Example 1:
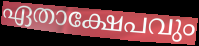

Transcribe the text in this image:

ഏതാക്ഷേപവും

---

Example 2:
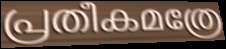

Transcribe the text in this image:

പ്രതീകമത്രേ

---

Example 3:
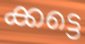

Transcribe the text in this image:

ക്കട്ടെ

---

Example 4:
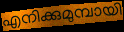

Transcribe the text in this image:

എനിക്കുമുമ്പായി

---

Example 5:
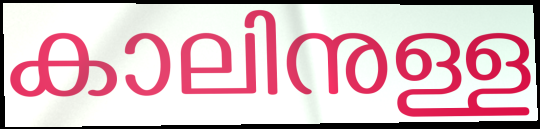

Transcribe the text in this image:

കാലിനുള്ള